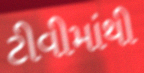
ટીવીમાંથી